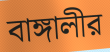
বাঙ্গালীর